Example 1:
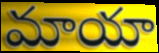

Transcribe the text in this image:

మాయా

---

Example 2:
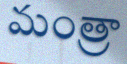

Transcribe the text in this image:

మంత్రా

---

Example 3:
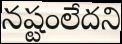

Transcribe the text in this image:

నష్టంలేదని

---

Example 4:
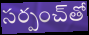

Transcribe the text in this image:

సర్పంచ్‌తో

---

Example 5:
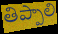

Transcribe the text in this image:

తిప్పాలి